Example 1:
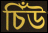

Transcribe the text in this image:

চিঁউ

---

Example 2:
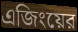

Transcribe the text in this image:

এজিংয়ের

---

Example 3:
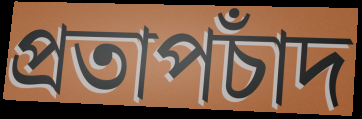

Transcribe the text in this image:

প্রতাপচাঁদ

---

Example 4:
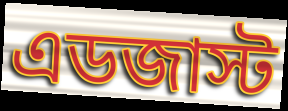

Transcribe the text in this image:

এডজাস্ট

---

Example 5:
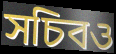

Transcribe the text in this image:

সচিবও